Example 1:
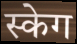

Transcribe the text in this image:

स्केग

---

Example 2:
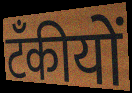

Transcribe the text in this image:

टँकीयों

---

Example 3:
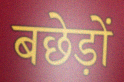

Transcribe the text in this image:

बछेड़ों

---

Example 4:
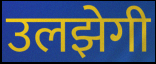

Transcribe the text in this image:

उलझेगी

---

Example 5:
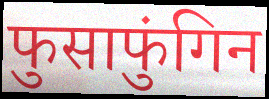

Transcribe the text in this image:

फुसाफुंगिन